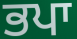
ਭਪਾ